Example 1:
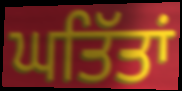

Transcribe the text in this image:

ਘਤਿੱਤਾਂ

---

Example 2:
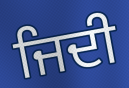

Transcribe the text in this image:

ਜਿਦੀ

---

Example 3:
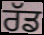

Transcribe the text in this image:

ਰੱਡ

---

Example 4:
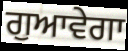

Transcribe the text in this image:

ਗੁਆਵੇਗਾ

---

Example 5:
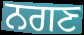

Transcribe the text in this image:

ਨਗਣ